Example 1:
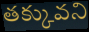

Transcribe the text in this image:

తక్కువని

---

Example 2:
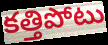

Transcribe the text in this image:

కత్తిపోటు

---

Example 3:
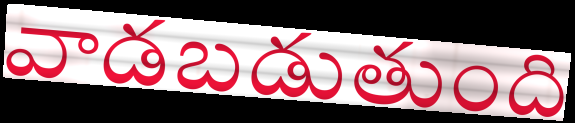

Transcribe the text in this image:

వాడబడుతుంది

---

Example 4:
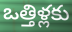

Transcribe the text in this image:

ఒత్తిళ్లకు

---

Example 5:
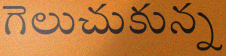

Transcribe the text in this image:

గెలుచుకున్న